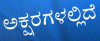
ಅಕ್ಷರಗಳಲ್ಲಿದೆ